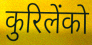
कुरिलेंको